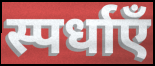
स्पर्धाएँ